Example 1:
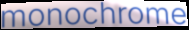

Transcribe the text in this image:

monochrome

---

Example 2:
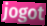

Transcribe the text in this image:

jogot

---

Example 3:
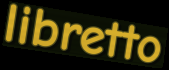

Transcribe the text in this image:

libretto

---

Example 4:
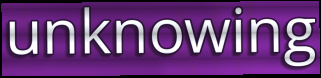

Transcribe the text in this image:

unknowing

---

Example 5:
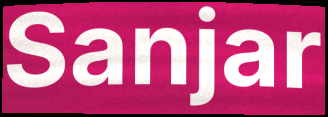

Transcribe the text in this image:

Sanjar